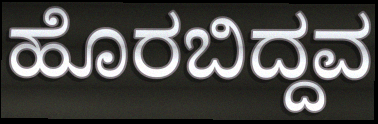
ಹೊರಬಿದ್ದವ